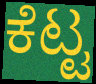
ಕೆಟ್ಟ